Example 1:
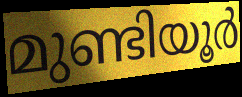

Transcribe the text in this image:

മുണ്ടിയൂർ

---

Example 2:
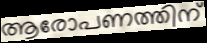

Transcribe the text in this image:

ആരോപണത്തിന്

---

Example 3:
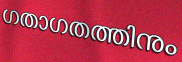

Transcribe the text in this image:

ഗതാഗതത്തിനും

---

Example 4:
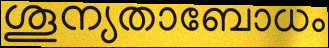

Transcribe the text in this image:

ശൂന്യതാബോധം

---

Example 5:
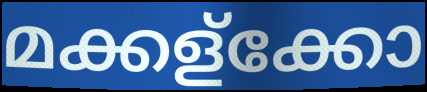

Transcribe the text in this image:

മക്കള്ക്കോ